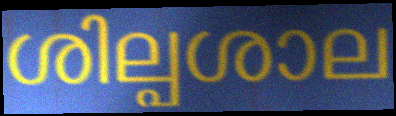
ശില്പശാല